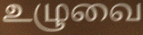
உழுவை